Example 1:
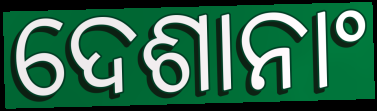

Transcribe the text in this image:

ଦେଶାନାଂ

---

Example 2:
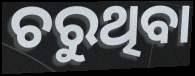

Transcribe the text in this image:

ଚରୁଥିବା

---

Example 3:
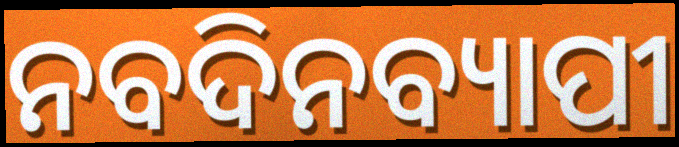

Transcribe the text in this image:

ନବଦିନବ୍ୟାପୀ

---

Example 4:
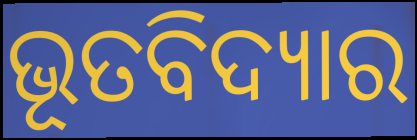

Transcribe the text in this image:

ଭୂତବିଦ୍ୟାର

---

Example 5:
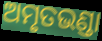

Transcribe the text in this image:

ଅମୃତଭଣ୍ଡା